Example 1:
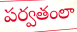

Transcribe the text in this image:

పర్వతంలా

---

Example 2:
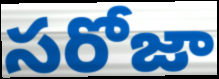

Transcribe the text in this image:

సరోజా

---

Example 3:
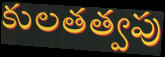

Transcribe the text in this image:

కులతత్వపు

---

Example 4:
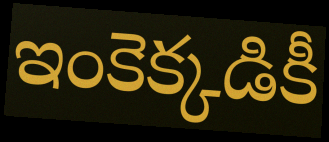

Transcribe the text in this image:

ఇంకెక్కడికీ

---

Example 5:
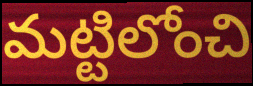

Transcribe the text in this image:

మట్టిలోంచి